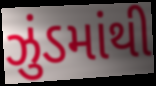
ઝુંડમાંથી